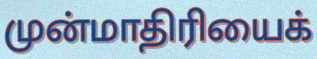
முன்மாதிரியைக்